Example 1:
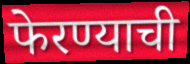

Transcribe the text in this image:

फेरण्याची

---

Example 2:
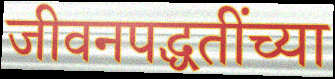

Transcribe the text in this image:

जीवनपद्धतींच्या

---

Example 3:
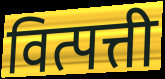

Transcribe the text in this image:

वित्पत्ती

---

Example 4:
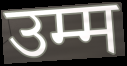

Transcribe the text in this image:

उम्म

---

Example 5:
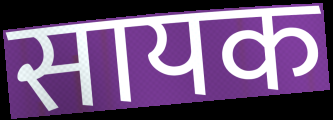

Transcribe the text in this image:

सायक